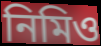
নিমিও